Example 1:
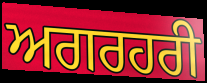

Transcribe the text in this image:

ਅਗਰਹਰੀ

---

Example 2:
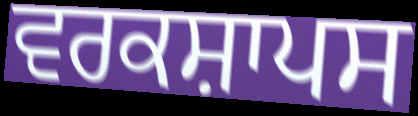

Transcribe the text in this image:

ਵਰਕਸ਼ਾਪਸ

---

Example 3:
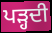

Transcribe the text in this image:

ਪਡ਼੍ਹਦੀ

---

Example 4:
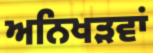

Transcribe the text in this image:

ਅਨਿਖੜਵਾਂ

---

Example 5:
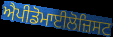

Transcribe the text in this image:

ਐਪੀਡੋਮਾਈਲੋਜ਼ਿਸਟ